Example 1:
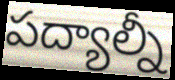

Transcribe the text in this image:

పద్యాల్నీ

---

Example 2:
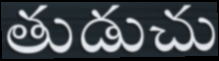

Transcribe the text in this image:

తుడుచు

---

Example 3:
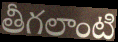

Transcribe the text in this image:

తీగలాంటి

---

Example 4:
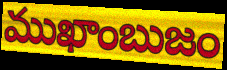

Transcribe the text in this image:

ముఖాంబుజం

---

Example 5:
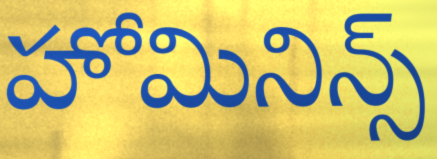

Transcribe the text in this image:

హోమినిన్స్